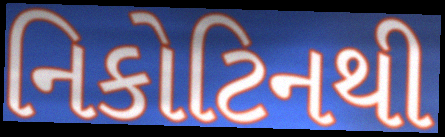
નિકોટિનથી